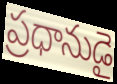
ప్రధానుడై